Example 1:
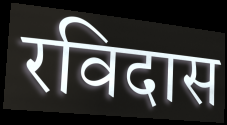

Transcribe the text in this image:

रविदास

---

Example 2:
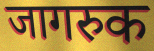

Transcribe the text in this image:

जागरुक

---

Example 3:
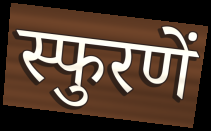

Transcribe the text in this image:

स्फुरणें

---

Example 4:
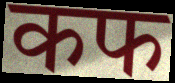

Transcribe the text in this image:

कफ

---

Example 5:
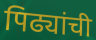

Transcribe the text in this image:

पिढ्यांची